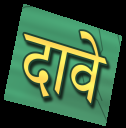
दावे